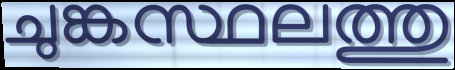
ചുങ്കസ്ഥലത്തു